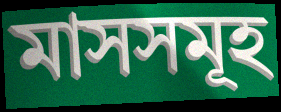
মাসসমূহ